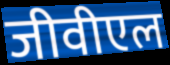
जीवीएल